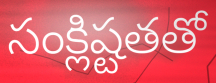
సంక్లిష్టతతో